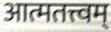
आत्मतत्त्वम्